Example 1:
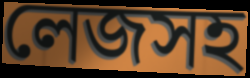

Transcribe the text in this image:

লেজসহ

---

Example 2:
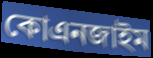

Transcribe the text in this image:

কোএনজাইম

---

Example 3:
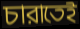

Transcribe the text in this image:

চারাতেই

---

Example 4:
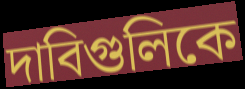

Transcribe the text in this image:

দাবিগুলিকে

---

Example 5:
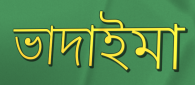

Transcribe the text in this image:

ভাদাইমা